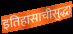
इतिहासाचीसुद्धा